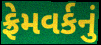
ફ્રેમવર્કનું